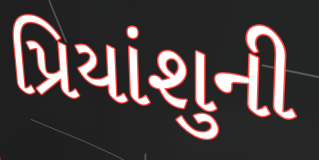
પ્રિયાંશુની